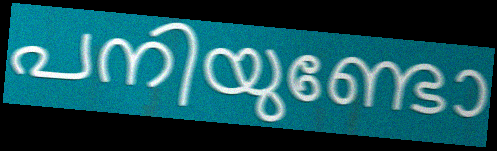
പനിയുണ്ടോ